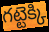
గట్టెక్కి